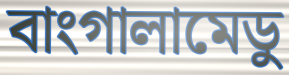
বাংগালামেডু